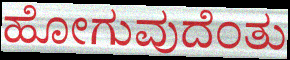
ಹೋಗುವುದೆಂತು